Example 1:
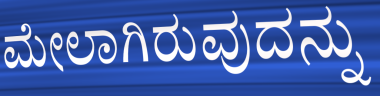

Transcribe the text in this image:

ಮೇಲಾಗಿರುವುದನ್ನು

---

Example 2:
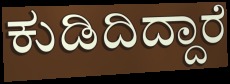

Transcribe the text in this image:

ಕುಡಿದಿದ್ದಾರೆ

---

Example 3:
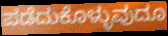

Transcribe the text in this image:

ಪಡೆದುಕೊಳ್ಳುವುದೂ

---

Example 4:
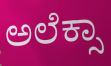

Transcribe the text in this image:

ಅಲೆಕ್ಸಾ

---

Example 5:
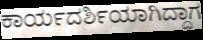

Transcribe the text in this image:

ಕಾರ್ಯದರ್ಶಿಯಾಗಿದ್ದಾಗ